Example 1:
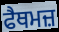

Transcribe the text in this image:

ਫੈਥਮਜ਼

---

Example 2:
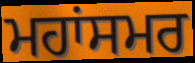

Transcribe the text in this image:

ਮਹਾਂਸਮਰ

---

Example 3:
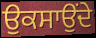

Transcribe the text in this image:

ਉਕਸਾਉਂਦੇ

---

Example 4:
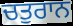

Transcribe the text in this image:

ਚਤੁਰਾਨ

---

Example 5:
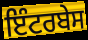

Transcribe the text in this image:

ਇੰਟਰਬੇਸ